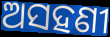
ଅସହଣୀ